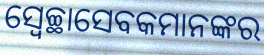
ସ୍ୱେଚ୍ଛାସେବକମାନଙ୍କର